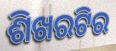
ଶିଖରଟିର